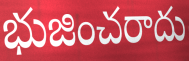
భుజించరాదు